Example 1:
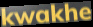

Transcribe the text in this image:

kwakhe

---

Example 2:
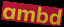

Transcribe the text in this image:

ambd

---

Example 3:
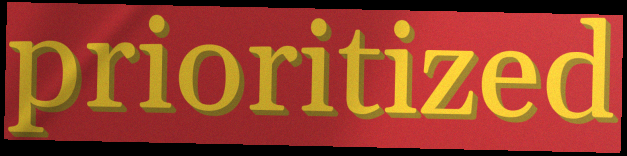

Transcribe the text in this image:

prioritized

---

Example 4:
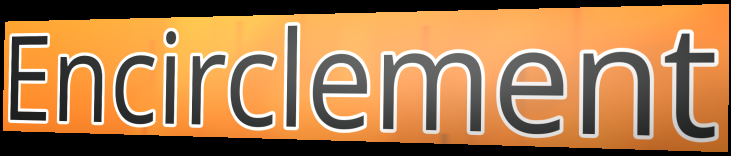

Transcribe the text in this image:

Encirclement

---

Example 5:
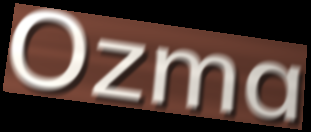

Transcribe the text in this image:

Ozma